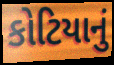
કોટિયાનું